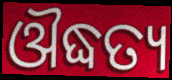
ଔଦ୍ଧତ୍ୟ